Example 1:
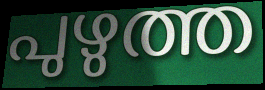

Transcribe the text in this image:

പുഴുത്ത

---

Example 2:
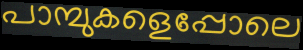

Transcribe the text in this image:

പാമ്പുകളെപ്പോലെ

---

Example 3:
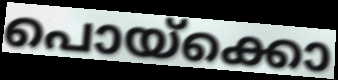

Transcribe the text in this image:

പൊയ്ക്കൊ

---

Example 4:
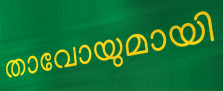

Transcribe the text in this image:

താവോയുമായി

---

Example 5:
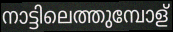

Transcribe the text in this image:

നാട്ടിലെത്തുമ്പോള്